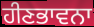
ਹੀਣਭਾਵਨਾ